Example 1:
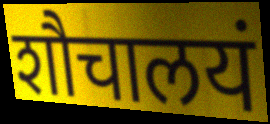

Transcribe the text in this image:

शौचालयं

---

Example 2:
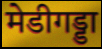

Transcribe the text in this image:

मेडीगड्डा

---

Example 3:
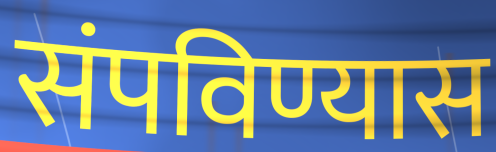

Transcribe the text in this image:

संपविण्यास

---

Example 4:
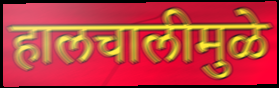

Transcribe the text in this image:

हालचालीमुळे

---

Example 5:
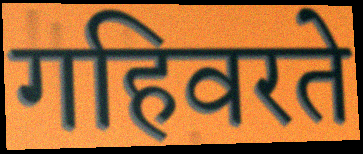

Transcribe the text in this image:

गहिवरते